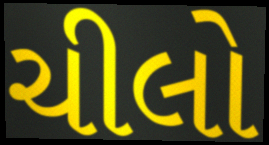
ચીલો